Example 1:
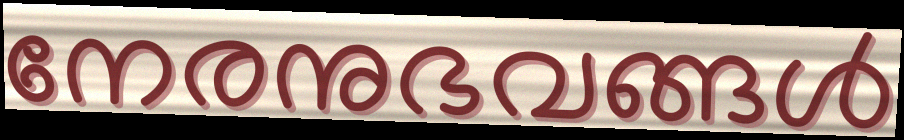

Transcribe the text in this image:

നേരനുഭവങ്ങൾ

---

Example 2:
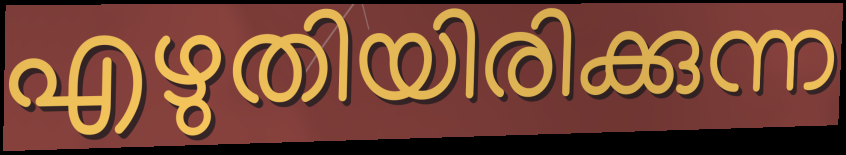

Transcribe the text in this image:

എഴുതിയിരിക്കുന്ന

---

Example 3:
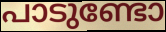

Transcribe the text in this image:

പാടുണ്ടോ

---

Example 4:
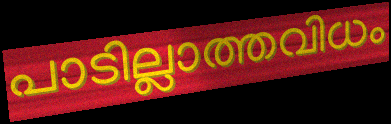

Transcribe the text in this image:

പാടില്ലാത്തവിധം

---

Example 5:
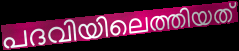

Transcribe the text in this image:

പദവിയിലെത്തിയത്